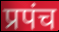
प्रपंच